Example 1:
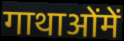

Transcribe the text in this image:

गाथाओंमें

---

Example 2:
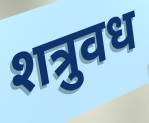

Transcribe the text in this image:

शत्रुवध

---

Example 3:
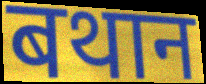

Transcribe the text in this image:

बथान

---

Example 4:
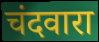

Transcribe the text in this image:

चंदवारा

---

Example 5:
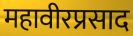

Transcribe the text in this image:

महावीरप्रसाद